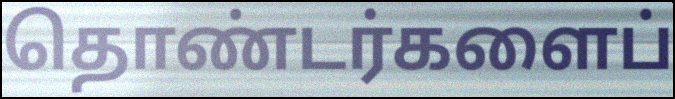
தொண்டர்களைப்